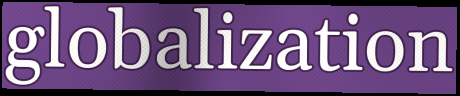
globalization